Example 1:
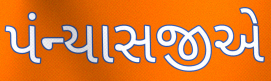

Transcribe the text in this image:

પંન્યાસજીએ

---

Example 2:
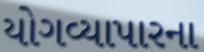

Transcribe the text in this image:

યોગવ્યાપારના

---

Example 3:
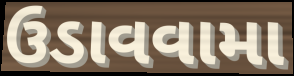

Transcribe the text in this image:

ઉડાવવામા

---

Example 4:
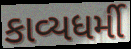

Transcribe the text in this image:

કાવ્યધર્મી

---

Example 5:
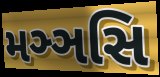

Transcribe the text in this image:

મઞ્ઞસિ